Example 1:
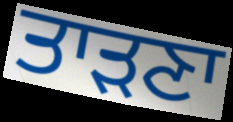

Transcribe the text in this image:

ਤਾੜਣਾ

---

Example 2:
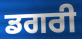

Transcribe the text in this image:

ਡਗਰੀ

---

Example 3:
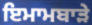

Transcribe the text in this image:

ਇਮਾਮਬਾੜੇ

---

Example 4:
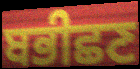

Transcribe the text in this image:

ਬਭੀਛਣ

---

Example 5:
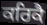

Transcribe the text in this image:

ਕਰਿਕੈ